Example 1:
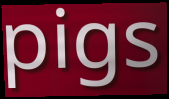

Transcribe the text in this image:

pigs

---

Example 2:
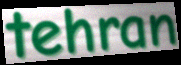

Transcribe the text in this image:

tehran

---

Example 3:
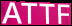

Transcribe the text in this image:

ATTF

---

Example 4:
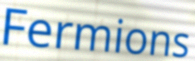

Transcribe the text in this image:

Fermions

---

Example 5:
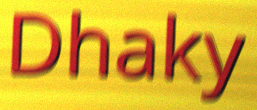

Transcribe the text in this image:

Dhaky